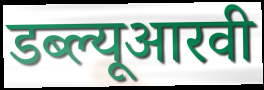
डब्ल्यूआरवी